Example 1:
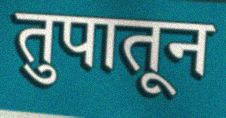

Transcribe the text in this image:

तुपातून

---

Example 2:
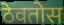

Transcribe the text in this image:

ठेवतोस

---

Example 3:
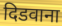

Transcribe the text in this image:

दिडवाना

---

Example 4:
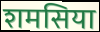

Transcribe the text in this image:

शमसिया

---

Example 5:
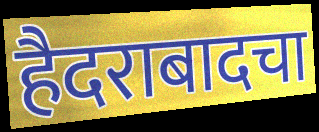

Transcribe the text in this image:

हैदराबादचा